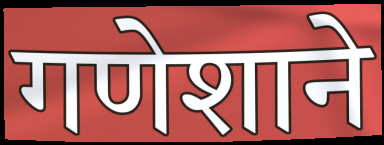
गणेशाने